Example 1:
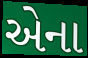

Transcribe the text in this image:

એના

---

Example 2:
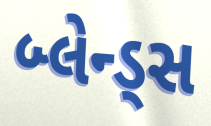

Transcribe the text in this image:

બ્લેન્ડ્સ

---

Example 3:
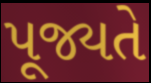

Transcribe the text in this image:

પૂજ્યતે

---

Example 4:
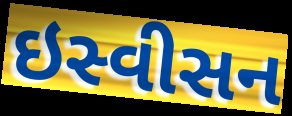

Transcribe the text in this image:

ઇસ્વીસન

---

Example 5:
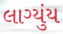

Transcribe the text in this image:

લાગ્યુંય